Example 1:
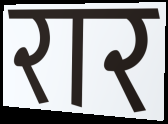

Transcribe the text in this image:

रार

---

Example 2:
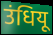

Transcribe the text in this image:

उंधियू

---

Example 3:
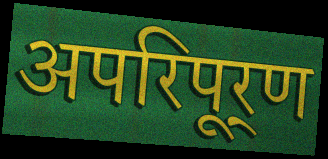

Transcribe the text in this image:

अपरिपूर्ण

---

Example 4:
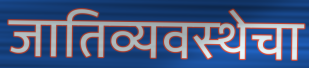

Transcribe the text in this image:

जातिव्यवस्थेचा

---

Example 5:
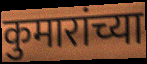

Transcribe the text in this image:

कुमारांच्या